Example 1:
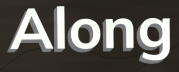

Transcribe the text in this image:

Along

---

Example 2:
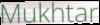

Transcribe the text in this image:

Mukhtar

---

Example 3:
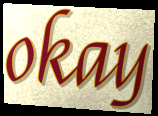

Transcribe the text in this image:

okay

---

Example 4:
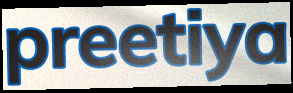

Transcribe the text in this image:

preetiya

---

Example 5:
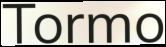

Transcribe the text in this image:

Tormo